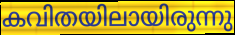
കവിതയിലായിരുന്നു